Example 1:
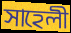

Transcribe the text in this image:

সাহেলী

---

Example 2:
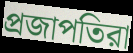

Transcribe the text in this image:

প্রজাপতিরা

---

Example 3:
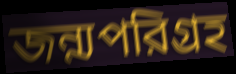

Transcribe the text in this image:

জন্মপরিগ্রহ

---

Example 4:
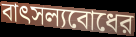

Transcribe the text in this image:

বাৎসল্যবোধের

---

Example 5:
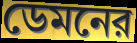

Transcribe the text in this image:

ডেমনের